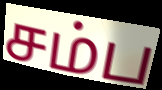
சம்ப